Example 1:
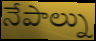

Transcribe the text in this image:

నేపాల్ను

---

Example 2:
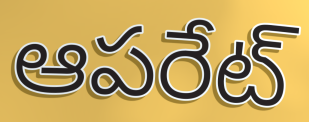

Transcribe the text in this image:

ఆపరేట్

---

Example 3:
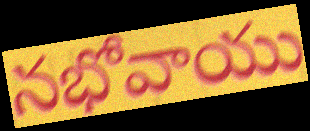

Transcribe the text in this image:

నభోవాయు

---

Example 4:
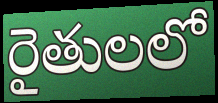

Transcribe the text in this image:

రైతులలో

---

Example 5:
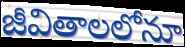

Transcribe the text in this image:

జీవితాలలోనూ